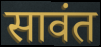
सावंत